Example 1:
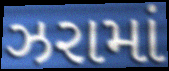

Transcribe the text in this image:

ઝરામાં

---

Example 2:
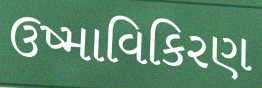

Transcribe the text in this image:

ઉષ્માવિકિરણ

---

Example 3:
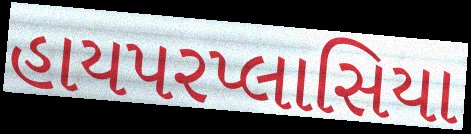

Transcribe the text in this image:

હાયપરપ્લાસિયા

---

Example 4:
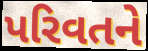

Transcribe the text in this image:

પરિવતને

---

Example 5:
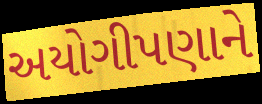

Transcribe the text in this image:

અયોગીપણાને